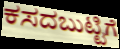
ಕಸದಬುಟ್ಟಿಗೆ